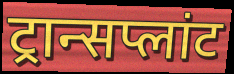
ट्रान्सप्लांट